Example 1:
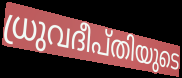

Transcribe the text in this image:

ധ്രുവദീപ്തിയുടെ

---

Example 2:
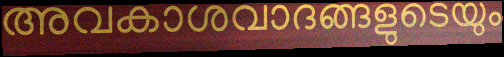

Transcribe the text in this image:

അവകാശവാദങ്ങളുടെയും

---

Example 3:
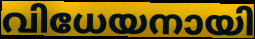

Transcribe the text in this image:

വിധേയനായി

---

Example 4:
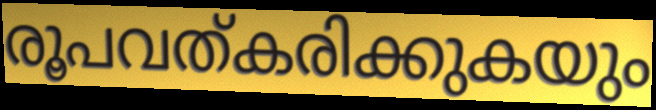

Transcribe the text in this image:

രൂപവത്കരിക്കുകയും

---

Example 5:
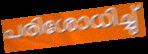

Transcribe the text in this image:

പരിശോധിച്ചു്